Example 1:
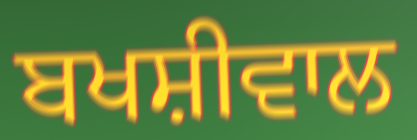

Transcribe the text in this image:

ਬਖਸ਼ੀਵਾਲ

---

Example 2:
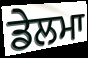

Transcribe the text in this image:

ਡੇਲਮਾ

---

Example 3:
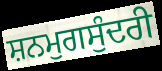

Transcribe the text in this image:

ਸ਼ਨਮੁਗਸੁੰਦਰੀ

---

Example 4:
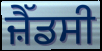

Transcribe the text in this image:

ਜ਼ੈੱਡਸੀ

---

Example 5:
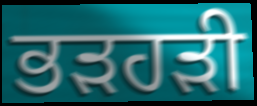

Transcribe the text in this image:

ਭੜਹੜੀ